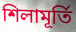
শিলামূর্তি